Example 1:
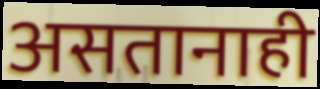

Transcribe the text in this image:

असतानाही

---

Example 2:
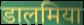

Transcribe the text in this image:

डालमिया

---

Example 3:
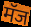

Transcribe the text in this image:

मॅज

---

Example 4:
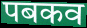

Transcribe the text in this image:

पबकव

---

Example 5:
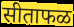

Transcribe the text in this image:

सीताफळ